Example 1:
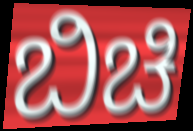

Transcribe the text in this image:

ಬಿಚಿ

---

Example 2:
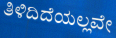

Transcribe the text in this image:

ತಿಳಿದಿದೆಯಲ್ಲವೇ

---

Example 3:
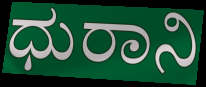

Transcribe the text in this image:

ಧುರಾನಿ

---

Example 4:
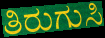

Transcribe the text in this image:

ತಿರುಗುಸಿ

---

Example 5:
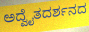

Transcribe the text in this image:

ಅದ್ವೈತದರ್ಶನದ